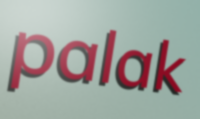
palak